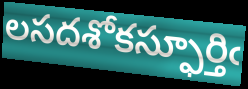
లసదశోకస్ఫూర్తిఁ